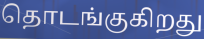
தொடங்குகிறது